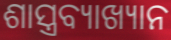
ଶାସ୍ତ୍ରବ୍ୟାଖ୍ୟାନ